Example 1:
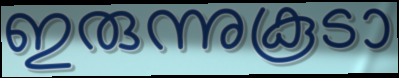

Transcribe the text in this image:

ഇരുന്നുകൂടാ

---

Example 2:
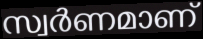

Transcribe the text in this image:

സ്വർണമാണ്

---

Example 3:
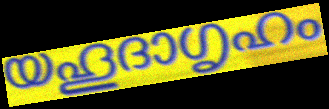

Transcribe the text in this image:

യഹൂദാഗൃഹം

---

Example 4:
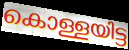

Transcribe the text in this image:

കൊള്ളയിട്ട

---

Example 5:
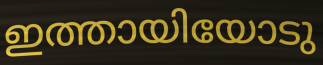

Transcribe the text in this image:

ഇത്തായിയോടു